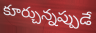
కూర్చున్నప్పుడే